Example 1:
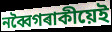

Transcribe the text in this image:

নব্বৈগৰাকীয়েই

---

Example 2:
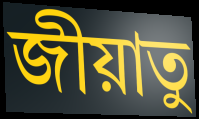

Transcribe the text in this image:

জীয়াতু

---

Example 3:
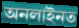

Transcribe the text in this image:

অনলাইনত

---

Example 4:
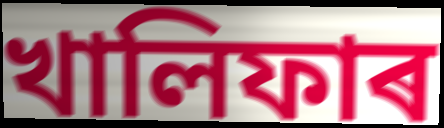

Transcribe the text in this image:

খালিফাৰ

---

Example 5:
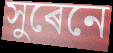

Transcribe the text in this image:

সুৰেনে